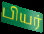
பியர்